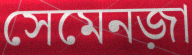
সেমেনজ়া